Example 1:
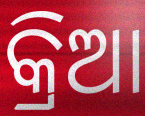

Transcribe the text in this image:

କ୍ରିଆ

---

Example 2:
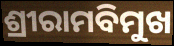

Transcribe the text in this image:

ଶ୍ରୀରାମବିମୁଖ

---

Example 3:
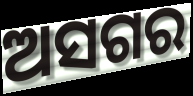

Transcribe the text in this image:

ଅସଗର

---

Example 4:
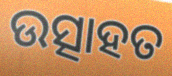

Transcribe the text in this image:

ଉତ୍ସାହତ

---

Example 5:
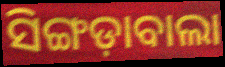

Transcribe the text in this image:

ସିଙ୍ଗଡ଼ାବାଲା